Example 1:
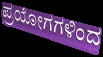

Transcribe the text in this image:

ಪ್ರಯೋಗಗಳಿಂದ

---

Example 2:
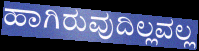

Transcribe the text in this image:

ಹಾಗಿರುವುದಿಲ್ಲವಲ್ಲ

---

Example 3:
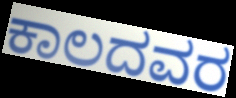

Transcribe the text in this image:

ಕಾಲದವರ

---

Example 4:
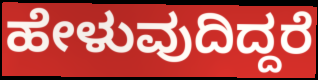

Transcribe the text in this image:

ಹೇಳುವುದಿದ್ದರೆ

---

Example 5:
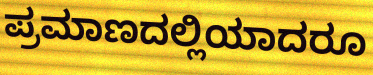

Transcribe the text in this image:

ಪ್ರಮಾಣದಲ್ಲಿಯಾದರೂ